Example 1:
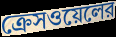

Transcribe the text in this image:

ক্রেসওয়েলের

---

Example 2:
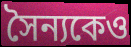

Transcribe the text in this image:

সৈন্যকেও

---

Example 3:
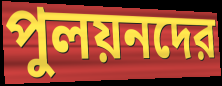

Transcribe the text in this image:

পুলয়নদের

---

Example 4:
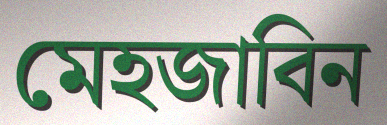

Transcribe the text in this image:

মেহজাবিন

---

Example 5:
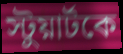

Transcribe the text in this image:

স্টুয়ার্টকে